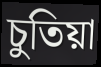
চুতিয়া